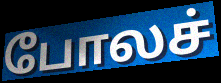
போலச்